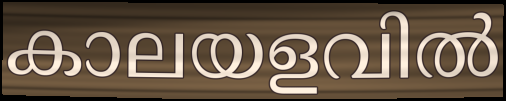
കാലയളവിൽ